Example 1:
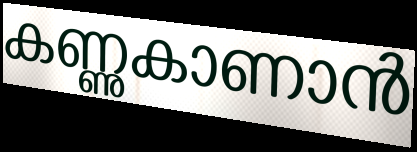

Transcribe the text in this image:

കണ്ണുകാണാൻ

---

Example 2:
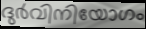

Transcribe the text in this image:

ദുർവിനിയോഗം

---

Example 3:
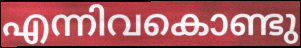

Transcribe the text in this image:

എന്നിവകൊണ്ടു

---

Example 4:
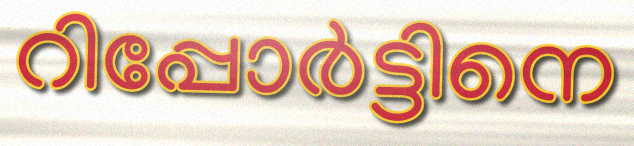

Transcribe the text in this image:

റിപ്പോർട്ടിനെ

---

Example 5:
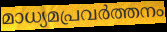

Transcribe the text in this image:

മാധ്യമപ്രവർത്തനം